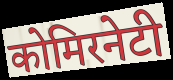
कोमिरनेटी